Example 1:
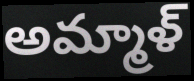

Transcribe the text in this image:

అమ్మాళ్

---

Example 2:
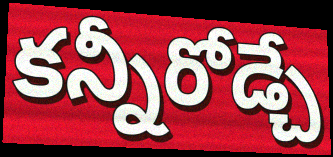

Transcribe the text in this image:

కన్నీరోడ్చే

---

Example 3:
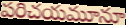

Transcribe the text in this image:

పరిచయమూనూ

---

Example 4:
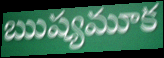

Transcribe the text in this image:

ఋష్యమూక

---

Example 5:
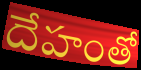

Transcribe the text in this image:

దేహంతో